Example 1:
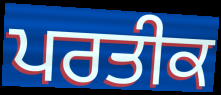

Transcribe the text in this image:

ਪਰਤੀਕ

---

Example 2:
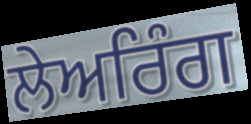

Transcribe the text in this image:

ਲੇਅਰਿੰਗ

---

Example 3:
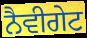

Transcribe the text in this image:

ਨੈਵੀਗੇਟ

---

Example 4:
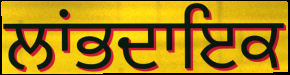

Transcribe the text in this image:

ਲਾਂਭਦਾਇਕ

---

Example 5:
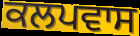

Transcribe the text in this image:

ਕਲਪਵਾਸ